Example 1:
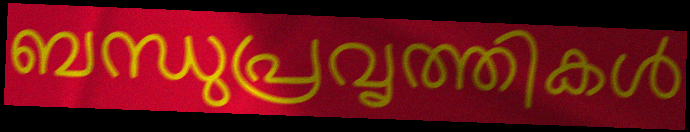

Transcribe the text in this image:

ബന്ധുപ്രവൃത്തികൾ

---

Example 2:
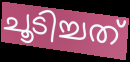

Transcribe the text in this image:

ചൂടിച്ചത്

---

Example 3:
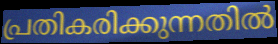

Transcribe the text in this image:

പ്രതികരിക്കുന്നതിൽ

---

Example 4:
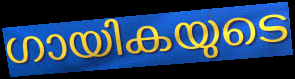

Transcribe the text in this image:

ഗായികയുടെ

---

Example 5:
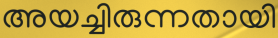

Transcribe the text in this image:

അയച്ചിരുന്നതായി